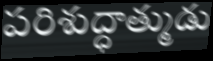
పరిశుద్ధాత్ముడు